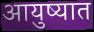
आयुष्यात